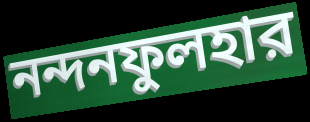
নন্দনফুলহার